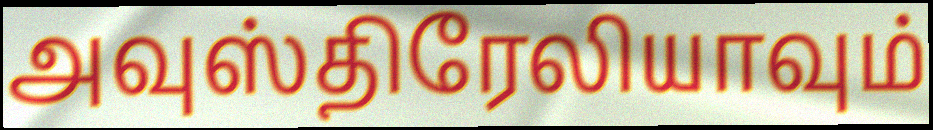
அவுஸ்திரேலியாவும்